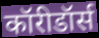
कॉरीडॉर्स